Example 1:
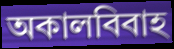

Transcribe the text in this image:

অকালবিবাহ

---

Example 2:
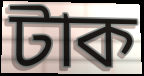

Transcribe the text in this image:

টাক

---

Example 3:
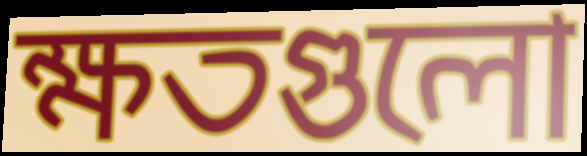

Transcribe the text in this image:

ক্ষতগুলো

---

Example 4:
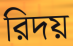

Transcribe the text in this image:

রিদয়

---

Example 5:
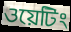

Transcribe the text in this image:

ওয়েটিং